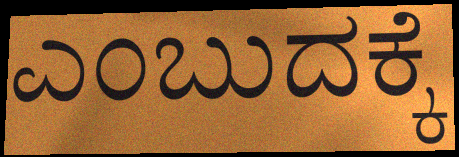
ಎಂಬುದಕ್ಕೆ